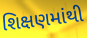
શિક્ષણમાંથી